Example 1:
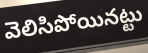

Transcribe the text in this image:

వెలిసిపోయినట్టు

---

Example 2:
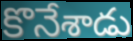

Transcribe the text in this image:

కొనేశాడు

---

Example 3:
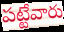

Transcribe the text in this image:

పట్టేవారు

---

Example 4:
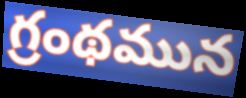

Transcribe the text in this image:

గ్రంథమున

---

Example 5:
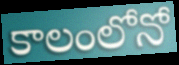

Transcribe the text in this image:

కాలంలోనో